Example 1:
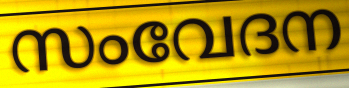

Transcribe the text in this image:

സംവേദന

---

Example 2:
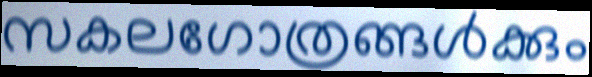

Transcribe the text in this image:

സകലഗോത്രങ്ങൾക്കും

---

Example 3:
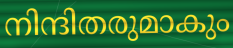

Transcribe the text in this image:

നിന്ദിതരുമാകും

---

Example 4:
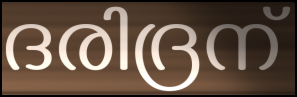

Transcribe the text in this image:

ദരിദ്രന്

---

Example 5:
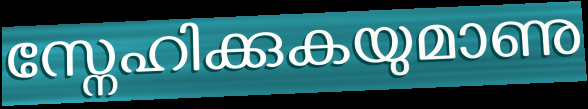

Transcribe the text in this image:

സ്നേഹിക്കുകയുമാണു